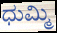
ಧುಮ್ಮಿ